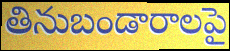
తినుబండారాలపై